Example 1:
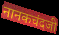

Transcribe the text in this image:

नानकचंदजी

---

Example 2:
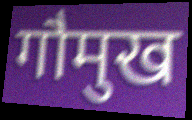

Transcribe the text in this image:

गौमुख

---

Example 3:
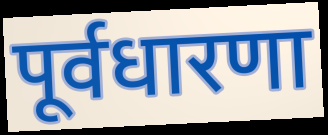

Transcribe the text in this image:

पूर्वधारणा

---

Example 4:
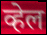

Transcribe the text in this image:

व्हेल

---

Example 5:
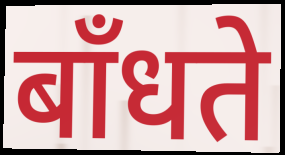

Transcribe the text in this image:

बाँधते